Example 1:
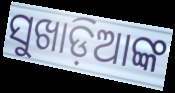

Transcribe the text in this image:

ସୁଖାଡ଼ିଆଙ୍କ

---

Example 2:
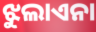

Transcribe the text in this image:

ଝୁଲାଏନା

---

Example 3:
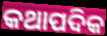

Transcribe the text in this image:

କଥାପଦିକ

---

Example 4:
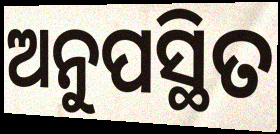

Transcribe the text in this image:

ଅନୁପସ୍ଥିତ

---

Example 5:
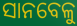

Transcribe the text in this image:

ସାନବେଳୁ